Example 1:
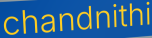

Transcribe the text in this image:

chandnithi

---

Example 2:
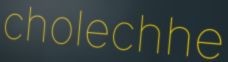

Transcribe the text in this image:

cholechhe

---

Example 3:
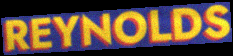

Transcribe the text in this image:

REYNOLDS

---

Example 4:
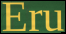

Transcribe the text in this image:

Eru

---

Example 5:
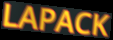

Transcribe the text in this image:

LAPACK